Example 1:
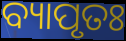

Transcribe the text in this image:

ବ୍ୟାପୃତଃ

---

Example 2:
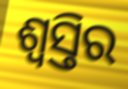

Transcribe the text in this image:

ଶ୍ୱସ୍ତିର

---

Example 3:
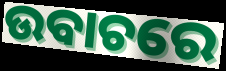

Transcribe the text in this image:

ଉବାଚରେ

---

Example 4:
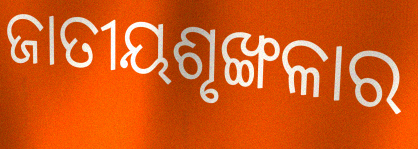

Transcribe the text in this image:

ଜାତୀୟଶୃଙ୍ଖଳାର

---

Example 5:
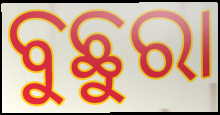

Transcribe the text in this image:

ବୁଛୁରା